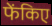
फेंकिए